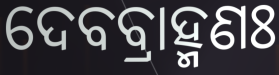
ଦେବବ୍ରାହ୍ମଣଃ